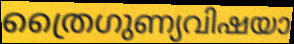
ത്രൈഗുണ്യവിഷയാ